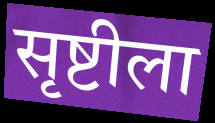
सृष्टीला